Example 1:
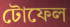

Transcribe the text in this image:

টোফেল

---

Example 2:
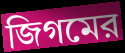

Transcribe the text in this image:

জিগমের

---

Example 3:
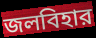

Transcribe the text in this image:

জলবিহার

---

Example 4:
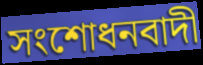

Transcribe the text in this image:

সংশোধনবাদী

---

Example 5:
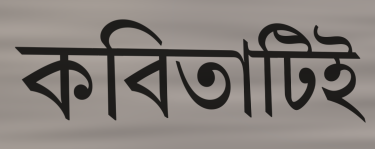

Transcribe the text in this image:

কবিতাটিই